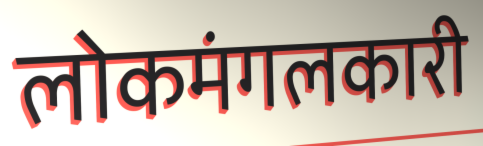
लोकमंगलकारी